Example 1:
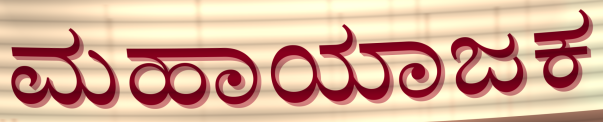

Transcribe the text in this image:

ಮಹಾಯಾಜಕ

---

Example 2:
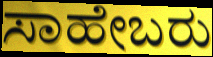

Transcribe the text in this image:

ಸಾಹೇಬರು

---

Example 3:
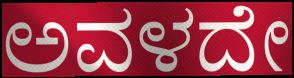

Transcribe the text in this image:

ಅವಳದೇ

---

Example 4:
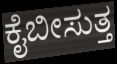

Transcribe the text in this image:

ಕೈಬೀಸುತ್ತ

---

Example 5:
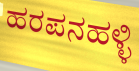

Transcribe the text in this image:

ಹರಪನಹಳ್ಳಿ